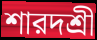
শারদশ্রী